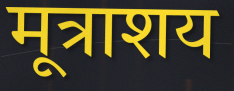
मूत्राशय